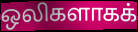
ஒலிகளாகக்